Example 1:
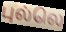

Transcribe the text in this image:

புல்லெ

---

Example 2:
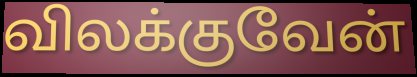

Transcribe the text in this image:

விலக்குவேன்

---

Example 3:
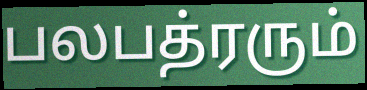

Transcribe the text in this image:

பலபத்ரரும்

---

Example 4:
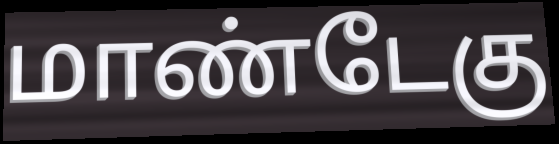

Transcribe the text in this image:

மாண்டேகு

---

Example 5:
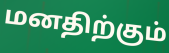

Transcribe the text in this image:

மனதிற்கும்